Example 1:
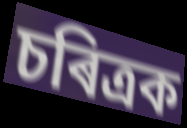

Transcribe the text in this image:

চৰিত্ৰক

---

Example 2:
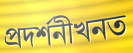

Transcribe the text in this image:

প্ৰদৰ্শনীখনত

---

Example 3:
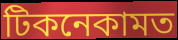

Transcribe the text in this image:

টিকনেকামত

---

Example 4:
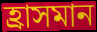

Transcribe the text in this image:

হ্ৰাসমান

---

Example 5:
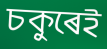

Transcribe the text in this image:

চকুৰেই